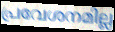
പ്രവേശനമില്ല